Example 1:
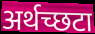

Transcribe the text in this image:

अर्थच्छटा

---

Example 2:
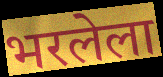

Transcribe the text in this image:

भरलेला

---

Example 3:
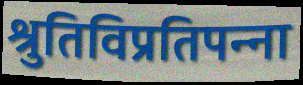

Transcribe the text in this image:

श्रुतिविप्रतिपन्ना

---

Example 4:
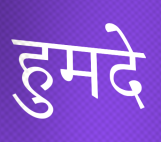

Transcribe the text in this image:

हुमदे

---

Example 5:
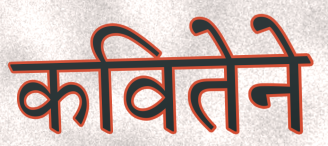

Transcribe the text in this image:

कवितेने